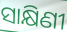
ସାକ୍ଷିଣୀ